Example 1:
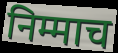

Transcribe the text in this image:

निम्माच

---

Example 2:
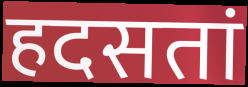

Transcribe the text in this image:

हदसतां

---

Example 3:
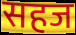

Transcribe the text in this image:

सहज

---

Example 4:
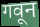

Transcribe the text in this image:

गवून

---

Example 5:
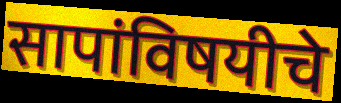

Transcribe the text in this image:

सापांविषयीचे